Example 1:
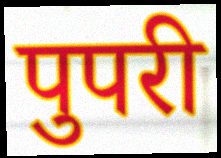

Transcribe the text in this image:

पुपरी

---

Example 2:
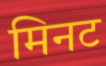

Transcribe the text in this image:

मिनट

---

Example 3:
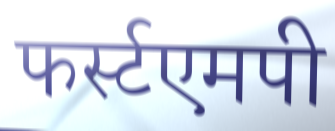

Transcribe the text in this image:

फर्स्टएमपी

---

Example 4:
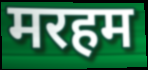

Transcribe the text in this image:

मरहम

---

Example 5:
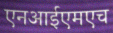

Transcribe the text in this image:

एनआईएमएच